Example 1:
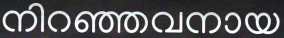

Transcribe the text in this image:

നിറഞ്ഞവനായ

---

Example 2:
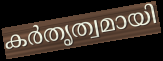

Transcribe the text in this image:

കർതൃത്വമായി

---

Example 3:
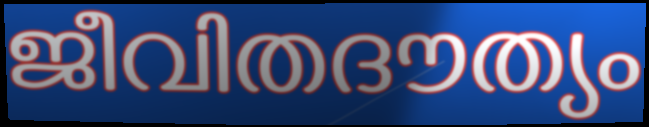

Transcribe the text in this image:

ജീവിതദൗത്യം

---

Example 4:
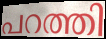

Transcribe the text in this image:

പറത്തി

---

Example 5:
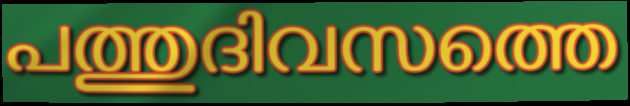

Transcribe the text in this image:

പത്തുദിവസത്തെ